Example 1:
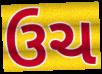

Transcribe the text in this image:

ઉચ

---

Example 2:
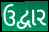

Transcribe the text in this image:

ઉદ્વાર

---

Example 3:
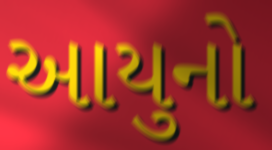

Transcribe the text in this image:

આયુનો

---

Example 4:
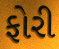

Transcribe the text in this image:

ફોરી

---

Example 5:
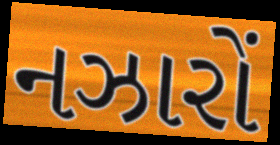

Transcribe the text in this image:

નઝારોં